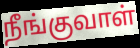
நீங்குவாள்